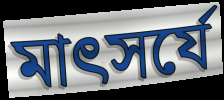
মাৎসর্যে